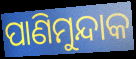
ପାଣିମୁନ୍ଦାକ